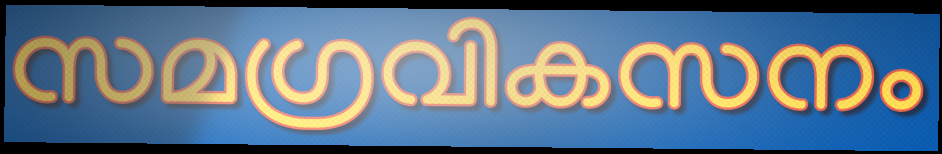
സമഗ്രവികസനം